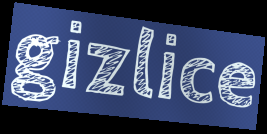
gizlice